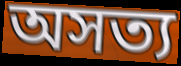
অসত্য